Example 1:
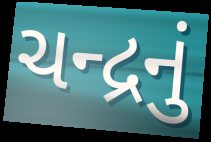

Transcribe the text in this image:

ચન્દ્રનું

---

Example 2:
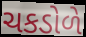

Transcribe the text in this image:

ચકડોળે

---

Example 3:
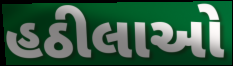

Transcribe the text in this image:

હઠીલાઓ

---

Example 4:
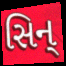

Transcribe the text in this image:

સિન્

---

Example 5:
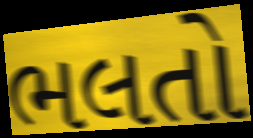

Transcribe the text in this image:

ભલતો